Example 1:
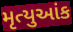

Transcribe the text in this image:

મૃત્યુઆંક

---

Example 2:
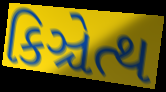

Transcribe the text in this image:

કિઞ્ચેત્થ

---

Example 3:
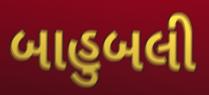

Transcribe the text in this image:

બાહુબલી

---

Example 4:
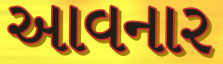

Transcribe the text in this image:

આવનાર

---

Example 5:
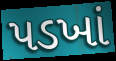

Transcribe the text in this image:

પડખાં